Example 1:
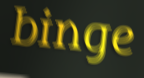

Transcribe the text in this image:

binge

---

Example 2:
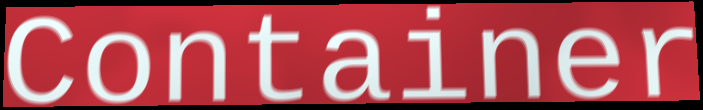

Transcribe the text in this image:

Container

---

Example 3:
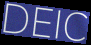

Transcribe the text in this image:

DEIC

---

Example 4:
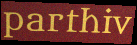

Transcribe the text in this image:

parthiv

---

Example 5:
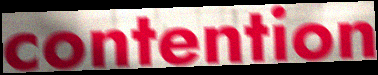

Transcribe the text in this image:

contention